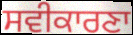
ਸਵੀਕਾਰਣਾ